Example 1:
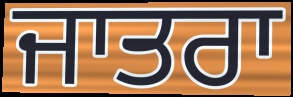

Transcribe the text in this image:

ਜਾਤਰਾ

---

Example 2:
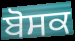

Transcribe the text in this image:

ਬੋਸਕ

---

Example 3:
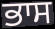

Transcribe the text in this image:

ਭਾਸ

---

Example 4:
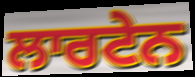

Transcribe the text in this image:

ਲਾਰਟੇਨ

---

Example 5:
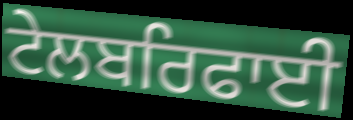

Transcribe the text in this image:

ਟੇਲਬਰਿਫਾਈ